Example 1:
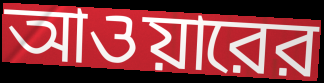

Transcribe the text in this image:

আওয়ারের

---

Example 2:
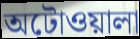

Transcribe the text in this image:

অটোওয়ালা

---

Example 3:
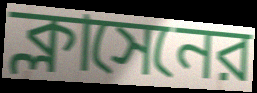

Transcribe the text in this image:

ক্লাসেনের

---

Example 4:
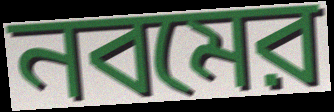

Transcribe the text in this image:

নবমের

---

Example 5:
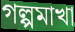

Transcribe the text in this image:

গল্পমাখা